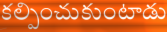
కల్పించుకుంటాడు